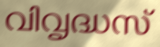
വിവൃദ്ധസ്